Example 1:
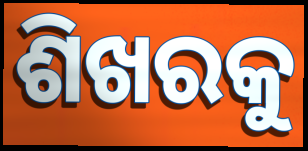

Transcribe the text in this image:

ଶିଖରକୁ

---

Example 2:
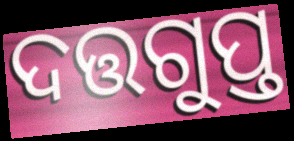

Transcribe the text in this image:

ଦତ୍ତଗୁପ୍ତ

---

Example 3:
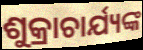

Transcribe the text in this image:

ଶୁକ୍ରାଚାର୍ଯ୍ୟଙ୍କ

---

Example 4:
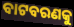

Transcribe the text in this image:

ବାଟବରଣକୁ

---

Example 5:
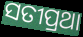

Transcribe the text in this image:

ସତୀପ୍ରଥା